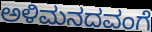
ಅಳಿಮನದವಂಗೆ